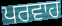
ਪਰਵਾਹ